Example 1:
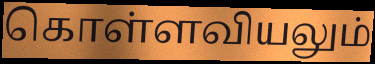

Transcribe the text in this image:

கொள்ளவியலும்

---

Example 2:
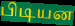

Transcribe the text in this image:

பிடியன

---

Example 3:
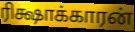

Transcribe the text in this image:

ரிக்ஷாக்காரன்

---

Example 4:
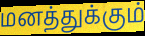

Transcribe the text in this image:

மனத்துக்கும்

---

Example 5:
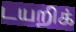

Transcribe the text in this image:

டயறிக்